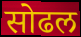
सोढल